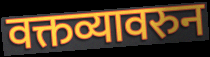
वक्तव्यावरुन